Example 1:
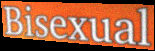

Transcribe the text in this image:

Bisexual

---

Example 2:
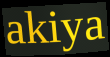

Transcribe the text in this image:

akiya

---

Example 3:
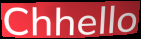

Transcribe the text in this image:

Chhello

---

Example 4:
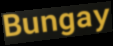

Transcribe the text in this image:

Bungay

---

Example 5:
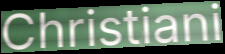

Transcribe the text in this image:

Christiani